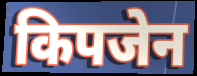
किपजेन